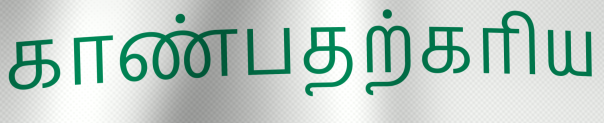
காண்பதற்கரிய